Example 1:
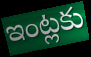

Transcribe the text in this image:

ఇంట్లకు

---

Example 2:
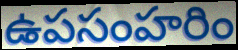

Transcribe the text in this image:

ఉపసంహరిం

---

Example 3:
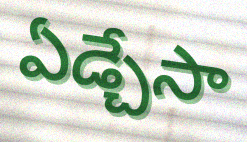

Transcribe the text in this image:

ఏడ్చేసా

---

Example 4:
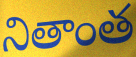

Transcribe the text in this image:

నితాంత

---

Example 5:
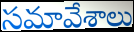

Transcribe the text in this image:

సమావేశాలు